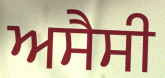
ਅਸੈਸੀ